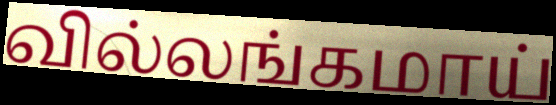
வில்லங்கமாய்